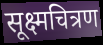
सूक्ष्मचित्रण